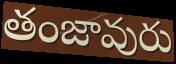
తంజావురు